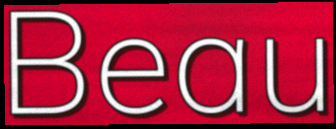
Beau